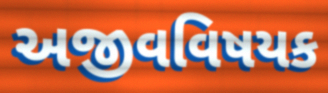
અજીવવિષયક